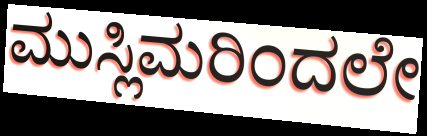
ಮುಸ್ಲಿಮರಿಂದಲೇ